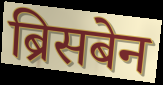
ब्रिसबेन